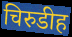
चिरुडीह